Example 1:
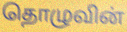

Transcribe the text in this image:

தொழுவின்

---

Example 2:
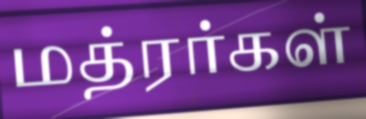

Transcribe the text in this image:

மத்ரர்கள்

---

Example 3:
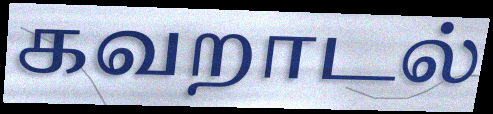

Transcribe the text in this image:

கவறாடல்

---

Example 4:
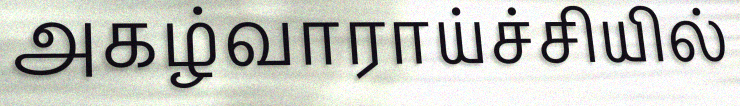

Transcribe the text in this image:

அகழ்வாராய்ச்சியில்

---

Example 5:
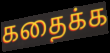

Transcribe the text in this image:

கதைக்க